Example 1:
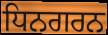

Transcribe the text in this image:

ਧਿਨਗਰਨ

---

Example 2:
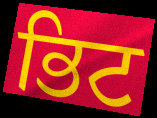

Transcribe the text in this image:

ਭਿਟ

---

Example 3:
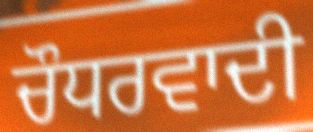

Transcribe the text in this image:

ਚੌਧਰਵਾਦੀ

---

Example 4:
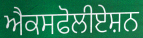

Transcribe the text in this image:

ਐਕਸਫੋਲੀਏਸ਼ਨ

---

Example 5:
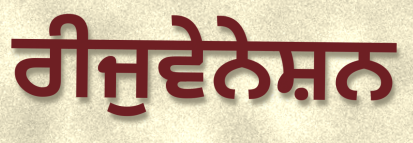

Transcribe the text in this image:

ਰੀਜੁਵੇਨੇਸ਼ਨ